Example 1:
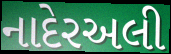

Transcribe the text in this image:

નાદેરઅલી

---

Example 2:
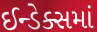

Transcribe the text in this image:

ઈન્ડેક્સમાં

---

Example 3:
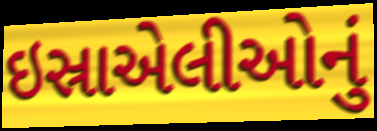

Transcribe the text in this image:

ઇસ્રાએલીઓનું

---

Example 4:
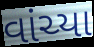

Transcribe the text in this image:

વાંચ્યા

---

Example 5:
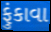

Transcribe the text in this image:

ફુંકાવા